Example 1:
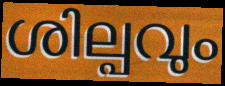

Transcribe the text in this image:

ശില്പവും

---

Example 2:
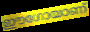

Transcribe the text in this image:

ഈഗോയാണ്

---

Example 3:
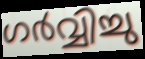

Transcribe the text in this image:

ഗർവ്വിച്ചു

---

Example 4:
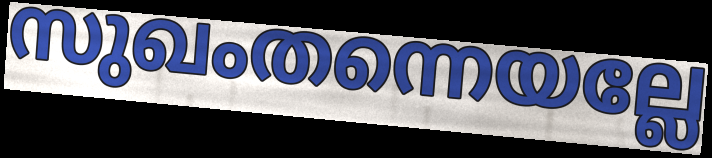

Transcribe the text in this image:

സുഖംതന്നെയല്ലേ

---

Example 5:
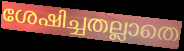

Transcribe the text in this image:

ശേഷിച്ചതല്ലാതെ